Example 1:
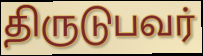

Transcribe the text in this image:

திருடுபவர்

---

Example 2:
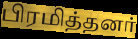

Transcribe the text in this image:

பிரமித்தனர்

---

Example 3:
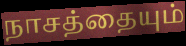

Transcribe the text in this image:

நாசத்தையும்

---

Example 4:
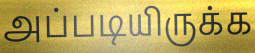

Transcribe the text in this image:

அப்படியிருக்க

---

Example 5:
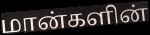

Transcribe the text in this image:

மான்களின்